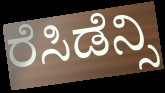
ರೆಸಿಡೆನ್ಸಿ